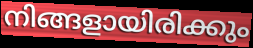
നിങ്ങളായിരിക്കും